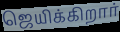
ஜெயிக்கிறார்